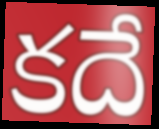
కదే